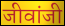
जीवांजी